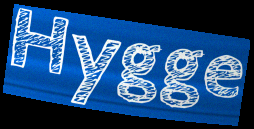
Hygge